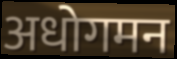
अधोगमन